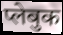
प्लेबुक